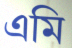
এমি